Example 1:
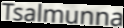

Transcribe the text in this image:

Tsalmunna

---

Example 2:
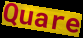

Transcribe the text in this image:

Quare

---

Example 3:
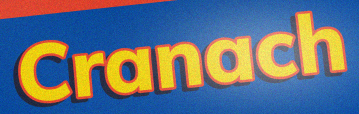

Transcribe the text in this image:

Cranach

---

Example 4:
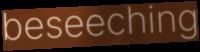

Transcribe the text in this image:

beseeching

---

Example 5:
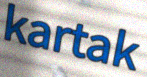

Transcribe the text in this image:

kartak